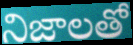
నిజాలతో